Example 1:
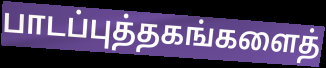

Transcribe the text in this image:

பாடப்புத்தகங்களைத்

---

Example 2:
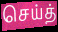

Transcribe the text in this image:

செய்த்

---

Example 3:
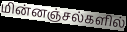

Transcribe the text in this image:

மின்னஞ்சல்களில்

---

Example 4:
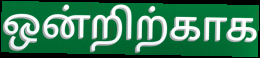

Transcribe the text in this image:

ஒன்றிற்காக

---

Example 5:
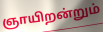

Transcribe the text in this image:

ஞாயிறன்றும்